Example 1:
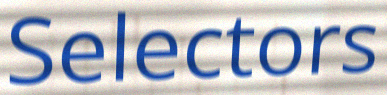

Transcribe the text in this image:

Selectors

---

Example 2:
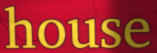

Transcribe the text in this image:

house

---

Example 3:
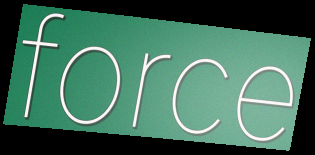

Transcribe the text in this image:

force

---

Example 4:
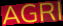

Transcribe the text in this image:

AGRI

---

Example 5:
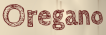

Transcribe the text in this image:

Oregano